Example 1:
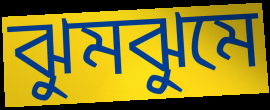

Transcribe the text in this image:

ঝুমঝুমে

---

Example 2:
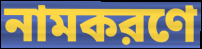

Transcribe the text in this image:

নামকরণে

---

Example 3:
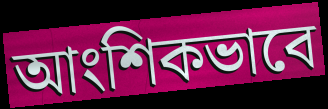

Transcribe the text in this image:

আংশিকভাবে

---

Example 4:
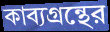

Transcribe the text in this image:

কাব্যগ্রন্থের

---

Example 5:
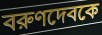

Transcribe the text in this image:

বরুণদেবকে